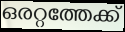
ഒരറ്റത്തേക്ക്